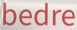
bedre